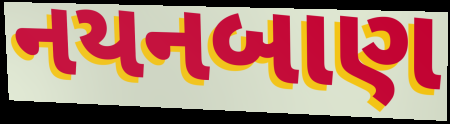
નયનબાણ